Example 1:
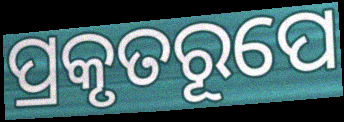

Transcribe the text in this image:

ପ୍ରକୃତରୂପେ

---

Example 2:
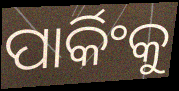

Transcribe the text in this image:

ପାର୍କିଂକୁ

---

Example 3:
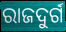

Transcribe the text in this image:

ରାଜଦୁର୍ଗ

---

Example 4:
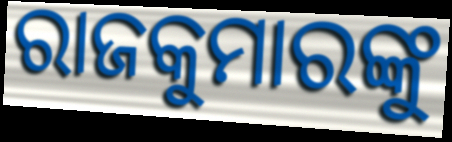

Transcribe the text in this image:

ରାଜକୁମାରଙ୍କୁ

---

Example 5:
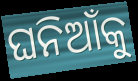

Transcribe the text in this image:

ଘନିଆଁକୁ